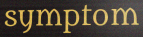
symptom